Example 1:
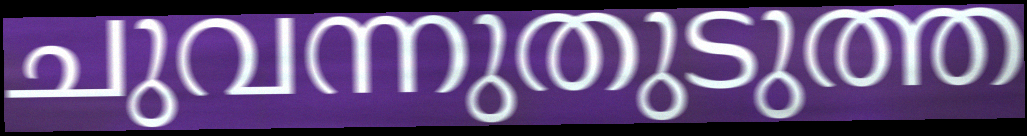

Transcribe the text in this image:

ചുവന്നുതുടുത്ത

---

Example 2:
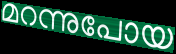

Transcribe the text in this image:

മറന്നുപോയ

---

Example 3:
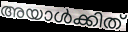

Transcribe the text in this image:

അയാൾക്കിത്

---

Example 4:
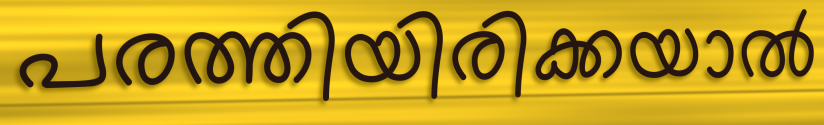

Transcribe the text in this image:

പരത്തിയിരിക്കയാൽ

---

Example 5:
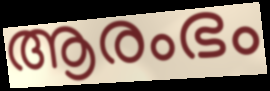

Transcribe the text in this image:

ആരംഭം